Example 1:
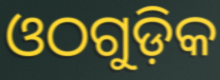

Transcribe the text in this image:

ଓଠଗୁଡ଼ିକ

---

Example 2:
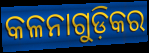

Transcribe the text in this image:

କଳନାଗୁଡ଼ିକର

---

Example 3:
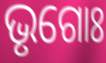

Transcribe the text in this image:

ଭୃଗୋଃ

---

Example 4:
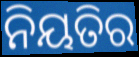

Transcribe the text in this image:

ନିୟତିର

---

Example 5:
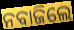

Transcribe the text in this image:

ନବାଜିଲେ